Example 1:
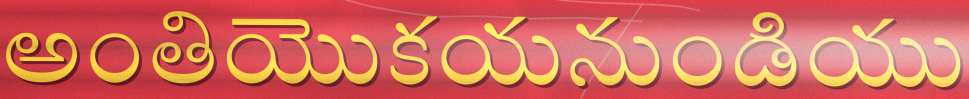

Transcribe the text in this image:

అంతియొకయనుండియు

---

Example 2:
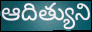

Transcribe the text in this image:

ఆదిత్యుని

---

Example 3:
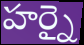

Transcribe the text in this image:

హర్నై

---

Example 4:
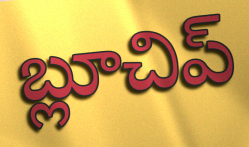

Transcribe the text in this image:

బ్లూచిప్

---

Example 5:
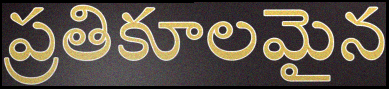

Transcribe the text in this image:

ప్రతికూలమైన